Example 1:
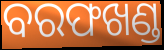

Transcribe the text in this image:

ବରଫଖଣ୍ଡ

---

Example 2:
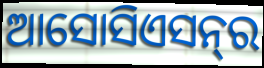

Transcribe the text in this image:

ଆସୋସିଏସନ୍‍ର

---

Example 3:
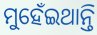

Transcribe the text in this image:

ମୁହେଁଇଥାନ୍ତି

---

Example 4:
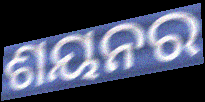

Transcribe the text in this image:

ଶୟନର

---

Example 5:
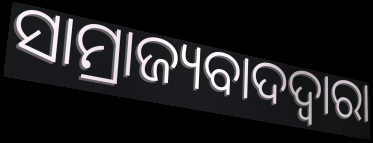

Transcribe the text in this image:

ସାମ୍ରାଜ୍ୟବାଦଦ୍ୱାରା